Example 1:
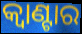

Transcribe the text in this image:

କ୍ୱାଣ୍ଟାର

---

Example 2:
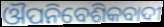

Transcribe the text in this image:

ଔପନିବେଶିକବାଦୀ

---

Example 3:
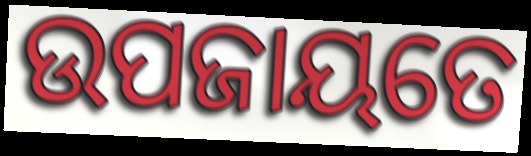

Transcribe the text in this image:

ଉପଜାୟତେ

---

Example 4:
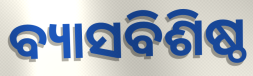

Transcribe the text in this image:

ବ୍ୟାସବିଶିଷ୍ଠ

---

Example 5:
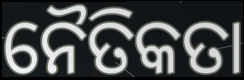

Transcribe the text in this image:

ନୈତିକତା